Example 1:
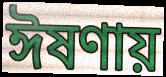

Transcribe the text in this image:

ঈষণায়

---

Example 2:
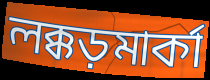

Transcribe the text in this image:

লক্কড়মার্কা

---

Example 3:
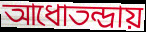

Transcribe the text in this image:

আধোতন্দ্রায়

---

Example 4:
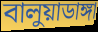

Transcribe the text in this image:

বালুয়াডাঙ্গা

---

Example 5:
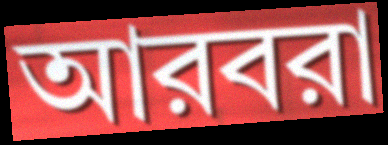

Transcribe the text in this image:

আরবরা